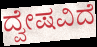
ದ್ವೇಷವಿದೆ